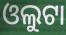
ଓଲୁଟା